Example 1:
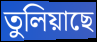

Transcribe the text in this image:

তুলিয়াছে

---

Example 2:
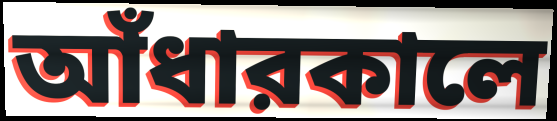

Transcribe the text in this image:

আঁধারকালে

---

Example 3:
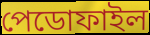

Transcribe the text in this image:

পেডোফাইল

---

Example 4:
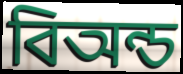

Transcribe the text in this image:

বিঅন্ড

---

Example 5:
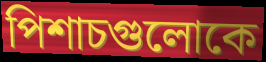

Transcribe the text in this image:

পিশাচগুলোকে